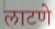
लाटणे